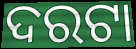
ଦରଟା